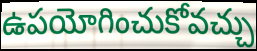
ఉపయోగించుకోవచ్చు